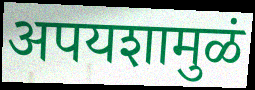
अपयशामुळं